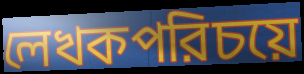
লেখকপরিচয়ে